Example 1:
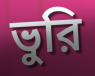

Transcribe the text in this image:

ভুরি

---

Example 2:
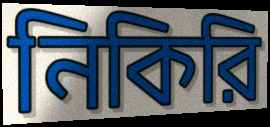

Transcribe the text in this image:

নিকিরি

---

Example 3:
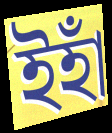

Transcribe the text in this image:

ইহাঁ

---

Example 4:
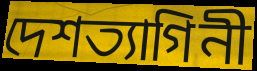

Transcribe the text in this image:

দেশত্যাগিনী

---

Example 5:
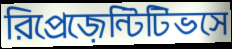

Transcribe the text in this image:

রিপ্রেজ়েন্টিটিভসে